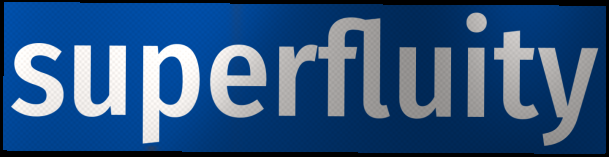
superfluity